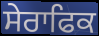
ਸੇਰਾਫਿਕ